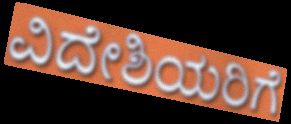
ವಿದೇಶಿಯರಿಗೆ